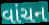
વાંચન